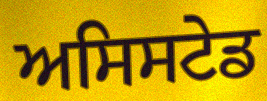
ਅਸਿਸਟੇਡ